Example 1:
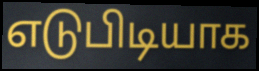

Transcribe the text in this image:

எடுபிடியாக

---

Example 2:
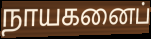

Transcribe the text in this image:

நாயகனைப்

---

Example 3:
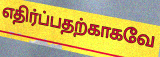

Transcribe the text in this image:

எதிர்ப்பதற்காகவே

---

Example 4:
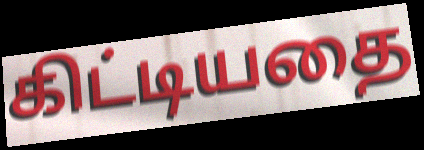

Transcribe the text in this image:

கிட்டியதை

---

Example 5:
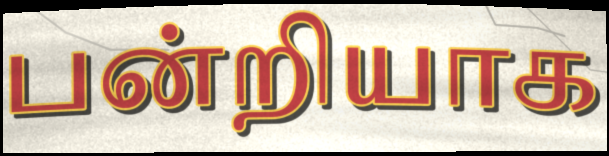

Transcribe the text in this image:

பன்றியாக